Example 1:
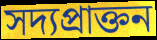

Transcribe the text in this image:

সদ্যপ্রাক্তন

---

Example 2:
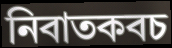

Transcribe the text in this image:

নিবাতকবচ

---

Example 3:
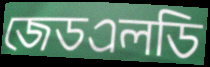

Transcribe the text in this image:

জেডএলডি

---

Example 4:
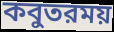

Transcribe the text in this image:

কবুতরময়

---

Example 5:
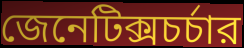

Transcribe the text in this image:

জেনেটিক্সচর্চার